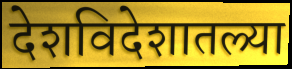
देशविदेशातल्या